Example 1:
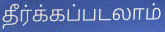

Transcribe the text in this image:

தீர்க்கப்படலாம்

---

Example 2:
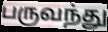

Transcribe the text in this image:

பருவந்து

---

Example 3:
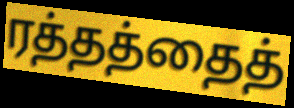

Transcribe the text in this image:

ரத்தத்தைத்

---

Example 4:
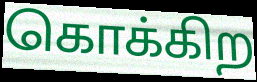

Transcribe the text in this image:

கொக்கிற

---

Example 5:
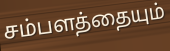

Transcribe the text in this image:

சம்பளத்தையும்